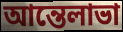
আন্তেলাভা